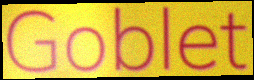
Goblet